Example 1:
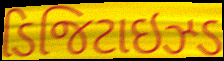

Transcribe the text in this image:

ડિજિટાઇઝ્ડ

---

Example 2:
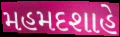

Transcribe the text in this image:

મહમદશાહે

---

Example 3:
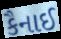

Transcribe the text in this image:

કૈનાઈ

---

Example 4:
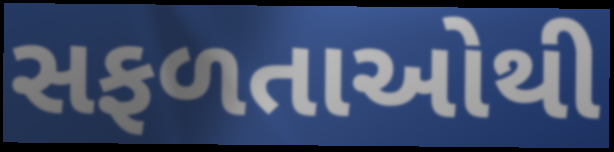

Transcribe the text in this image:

સફળતાઓથી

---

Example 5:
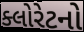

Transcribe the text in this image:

ક્લોરેટનો